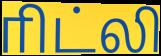
ரிட்லி